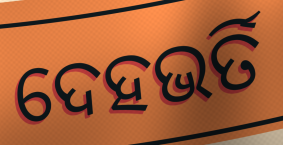
ଦେହଭର୍ତି